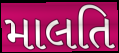
માલતિ